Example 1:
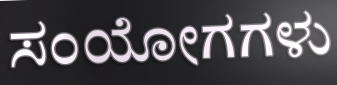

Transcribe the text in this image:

ಸಂಯೋಗಗಳು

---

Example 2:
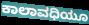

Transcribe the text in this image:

ಕಾಲಾವಧಿಯೂ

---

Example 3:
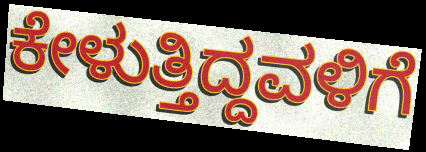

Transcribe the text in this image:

ಕೇಳುತ್ತಿದ್ದವಳಿಗೆ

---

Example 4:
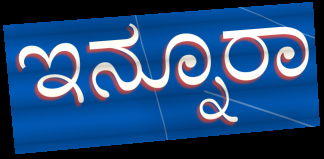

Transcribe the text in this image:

ಇನ್ನೂರಾ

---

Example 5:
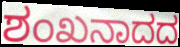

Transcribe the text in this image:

ಶಂಖನಾದದ